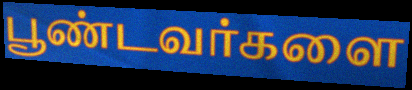
பூண்டவர்களை